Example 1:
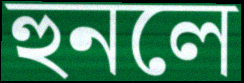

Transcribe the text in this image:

হুনলে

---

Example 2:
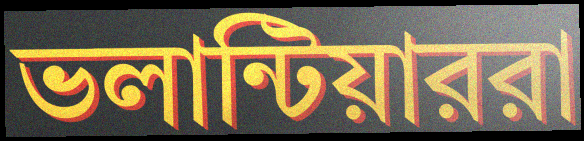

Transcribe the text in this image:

ভলান্টিয়াররা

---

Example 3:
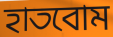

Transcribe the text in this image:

হাতবোম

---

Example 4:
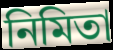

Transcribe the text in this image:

নিমিতা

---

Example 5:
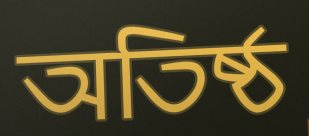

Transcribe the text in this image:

অতিষ্ঠ